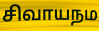
சிவாயநம